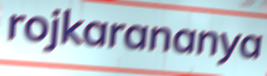
rojkarananya